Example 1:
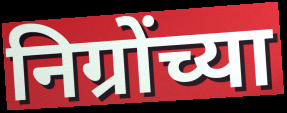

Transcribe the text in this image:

निग्रोंच्या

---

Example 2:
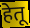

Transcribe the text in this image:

हेतू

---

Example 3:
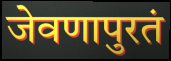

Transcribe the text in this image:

जेवणापुरतं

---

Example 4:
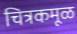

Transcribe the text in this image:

चित्रकमूळ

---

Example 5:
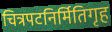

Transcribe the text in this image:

चित्रपटनिर्मितिगृह